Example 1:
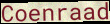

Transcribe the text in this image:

Coenraad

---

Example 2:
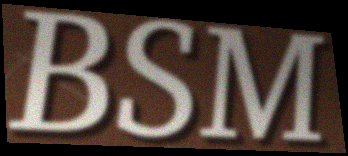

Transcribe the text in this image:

BSM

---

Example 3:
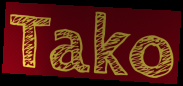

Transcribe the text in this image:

Tako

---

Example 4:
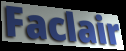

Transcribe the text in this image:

Faclair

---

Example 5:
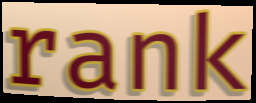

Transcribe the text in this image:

rank